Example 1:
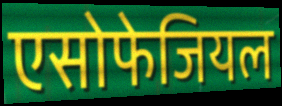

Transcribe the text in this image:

एसोफेजियल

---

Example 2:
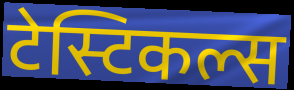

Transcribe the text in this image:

टेस्टिकल्स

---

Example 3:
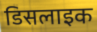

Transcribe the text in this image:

डिसलाइक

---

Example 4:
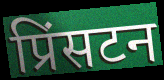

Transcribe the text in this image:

प्रिंसटन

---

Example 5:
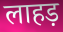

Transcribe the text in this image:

लाहड़